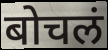
बोचलं